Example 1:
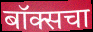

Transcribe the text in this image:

बॉक्सचा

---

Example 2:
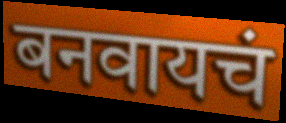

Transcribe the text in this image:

बनवायचं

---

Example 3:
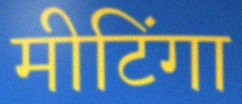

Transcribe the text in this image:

मीटिंगा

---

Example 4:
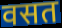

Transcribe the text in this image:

वसत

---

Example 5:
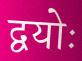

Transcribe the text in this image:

द्वयोः